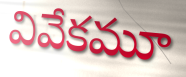
వివేకమూ